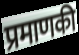
प्रमाणकी